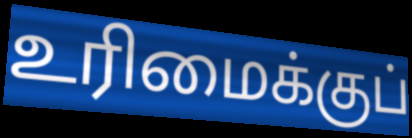
உரிமைக்குப்